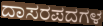
ದಾಸರಪದಗಳ